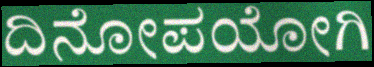
ದಿನೋಪಯೋಗಿ